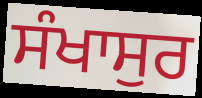
ਸੰਖਾਸੁਰ